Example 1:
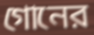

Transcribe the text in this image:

গোনের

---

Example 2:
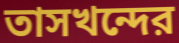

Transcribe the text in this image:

তাসখন্দের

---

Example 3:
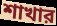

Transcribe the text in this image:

শাখার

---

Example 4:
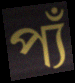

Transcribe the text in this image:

প্যঁ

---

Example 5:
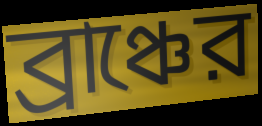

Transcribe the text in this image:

ব্রাঞ্চের